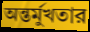
অন্তর্মুখতার